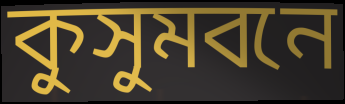
কুসুমবনে